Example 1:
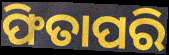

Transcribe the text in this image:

ଫିତାପରି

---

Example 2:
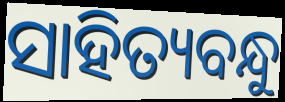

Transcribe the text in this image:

ସାହିତ୍ୟବନ୍ଧୁ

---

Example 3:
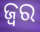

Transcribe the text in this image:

ଜ୍ଵର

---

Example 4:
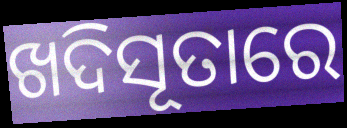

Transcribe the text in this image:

ଖଦିସୂତାରେ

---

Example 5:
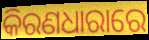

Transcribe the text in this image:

କିରଣଧାରାରେ